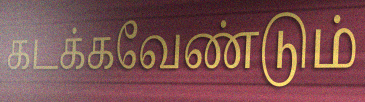
கடக்கவேண்டும்